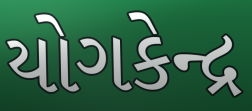
યોગકેન્દ્ર